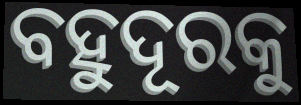
ବହୁଦୂରକୁ